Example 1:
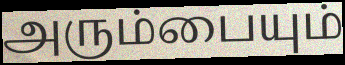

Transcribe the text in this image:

அரும்பையும்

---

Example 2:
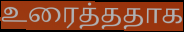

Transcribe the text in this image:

உரைத்ததாக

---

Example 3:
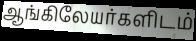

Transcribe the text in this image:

ஆங்கிலேயர்களிடம்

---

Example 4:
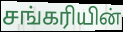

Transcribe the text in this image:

சங்கரியின்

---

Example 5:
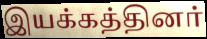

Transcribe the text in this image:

இயக்கத்தினர்